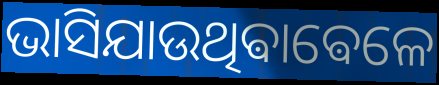
ଭାସିଯାଉଥିଵାଵେଳେ